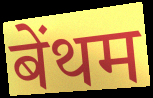
बेंथम